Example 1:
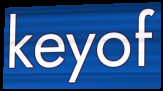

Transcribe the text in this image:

keyof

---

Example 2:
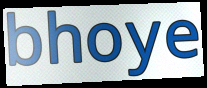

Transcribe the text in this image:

bhoye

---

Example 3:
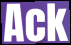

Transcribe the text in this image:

Ack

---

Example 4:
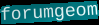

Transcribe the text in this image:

forumgeom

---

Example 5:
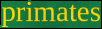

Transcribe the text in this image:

primates